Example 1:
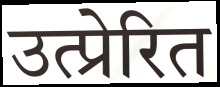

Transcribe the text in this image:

उत्‍प्रेरित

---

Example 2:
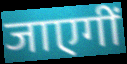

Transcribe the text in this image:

जाएगीं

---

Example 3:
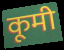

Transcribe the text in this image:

कूमी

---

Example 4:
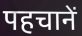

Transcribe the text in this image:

पहचानें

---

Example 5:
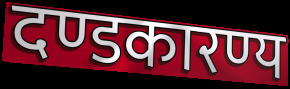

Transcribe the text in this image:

दण्डकारण्य